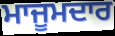
ਮਾਜੂਮਦਾਰ